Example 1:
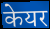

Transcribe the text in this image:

केयर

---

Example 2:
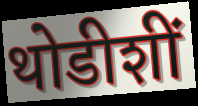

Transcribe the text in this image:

थोडीशीं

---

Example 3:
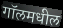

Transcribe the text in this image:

गॉलमधील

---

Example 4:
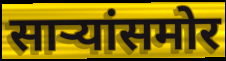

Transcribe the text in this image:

साऱ्यांसमोर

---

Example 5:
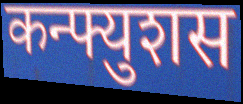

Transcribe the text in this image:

कन्फ्युशस